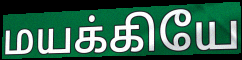
மயக்கியே